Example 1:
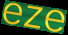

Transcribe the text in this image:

eze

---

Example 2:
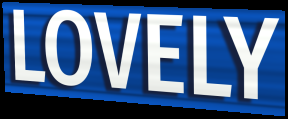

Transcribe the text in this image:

LOVELY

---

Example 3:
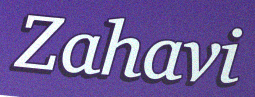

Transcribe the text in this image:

Zahavi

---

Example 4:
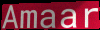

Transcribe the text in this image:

Amaar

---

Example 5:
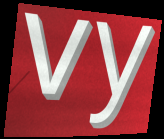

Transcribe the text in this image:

vy